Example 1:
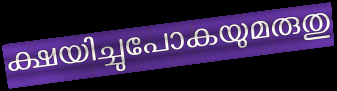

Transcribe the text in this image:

ക്ഷയിച്ചുപോകയുമരുതു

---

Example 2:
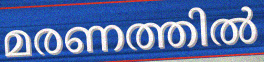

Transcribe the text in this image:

മരണത്തിൽ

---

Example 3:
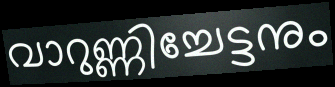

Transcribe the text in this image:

വാറുണ്ണിച്ചേട്ടനും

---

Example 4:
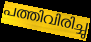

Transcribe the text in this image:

പത്തിവിരിച്ചു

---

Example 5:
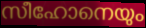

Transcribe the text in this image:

സീഹോനെയും